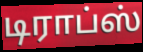
டிராப்ஸ்